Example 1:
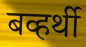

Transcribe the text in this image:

बव्हर्थी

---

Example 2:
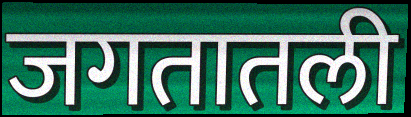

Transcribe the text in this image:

जगतातली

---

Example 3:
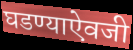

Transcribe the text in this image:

घडण्याऐवजी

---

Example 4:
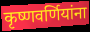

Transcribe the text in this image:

कृष्णवर्णियांना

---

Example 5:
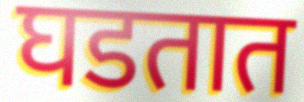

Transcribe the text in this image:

घडतात